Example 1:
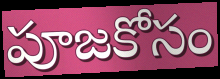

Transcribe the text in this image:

పూజకోసం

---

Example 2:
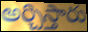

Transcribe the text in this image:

అర్చిస్తారు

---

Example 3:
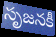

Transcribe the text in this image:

సృజనకీ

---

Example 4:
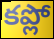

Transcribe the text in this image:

కప్లో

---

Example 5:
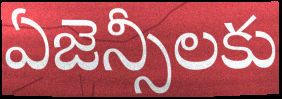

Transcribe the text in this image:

ఏజెన్సీలకు